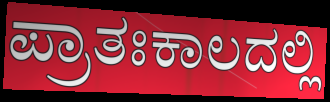
ಪ್ರಾತಃಕಾಲದಲ್ಲಿ